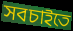
সবচাইতে